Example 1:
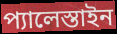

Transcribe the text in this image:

প্যালেস্তাইন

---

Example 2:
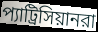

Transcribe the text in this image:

প্যাট্রিসিয়ানরা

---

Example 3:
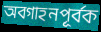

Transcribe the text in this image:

অবগাহনপূর্বক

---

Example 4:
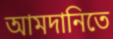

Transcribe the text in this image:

আমদানিতে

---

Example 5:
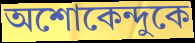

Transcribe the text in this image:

অশোকেন্দুকে